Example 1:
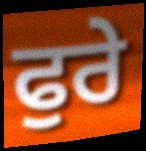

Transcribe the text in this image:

ਫੁਰੇ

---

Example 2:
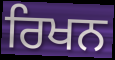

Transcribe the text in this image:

ਰਿਖਨ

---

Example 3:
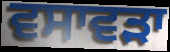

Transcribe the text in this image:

ਵਸਾਵੜਾ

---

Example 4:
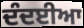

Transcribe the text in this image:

ਦੰਦਈਆ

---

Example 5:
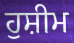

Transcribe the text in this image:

ਹੁਸ਼ੀਮ